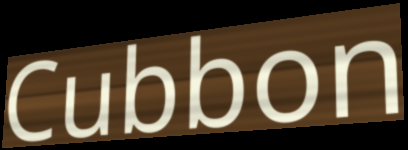
Cubbon